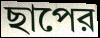
ছাপের